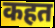
कहत